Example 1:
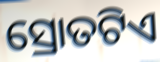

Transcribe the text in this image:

ସ୍ରୋତଟିଏ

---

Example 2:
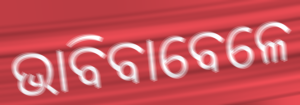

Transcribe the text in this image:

ଭାବିବାବେଳେ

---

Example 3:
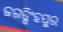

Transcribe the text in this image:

ଜଗତ୍ସିଂହପୁର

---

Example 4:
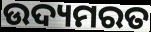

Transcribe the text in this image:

ଉଦ୍ୟମରତ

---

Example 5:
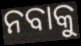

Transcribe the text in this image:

ନବାକୁ